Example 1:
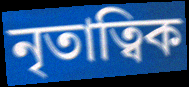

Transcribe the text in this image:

নৃতাত্বিক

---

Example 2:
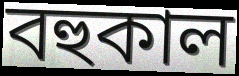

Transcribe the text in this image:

বহুকাল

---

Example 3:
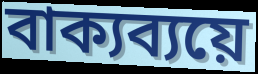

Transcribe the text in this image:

বাক্যব্যয়ে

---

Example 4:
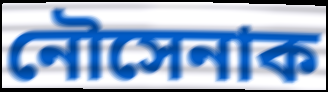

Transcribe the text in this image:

নৌসেনাক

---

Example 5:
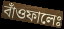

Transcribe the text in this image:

বাঁওফালেঃ